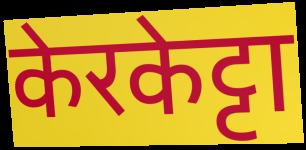
केरकेट्टा